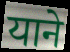
याने